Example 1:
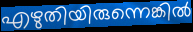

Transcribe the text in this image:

എഴുതിയിരുന്നെങ്കിൽ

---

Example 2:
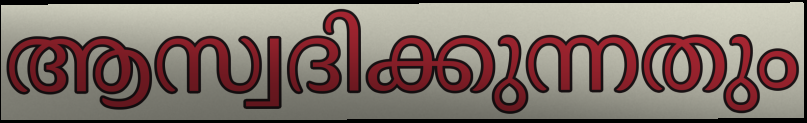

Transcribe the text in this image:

ആസ്വദിക്കുന്നതും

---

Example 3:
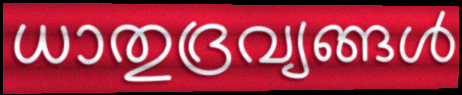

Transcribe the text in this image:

ധാതുദ്രവ്യങ്ങൾ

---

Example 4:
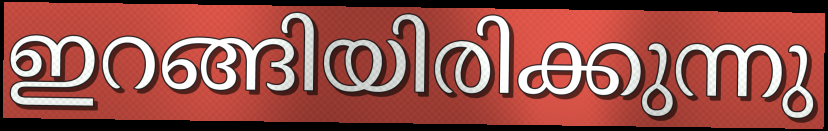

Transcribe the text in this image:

ഇറങ്ങിയിരിക്കുന്നു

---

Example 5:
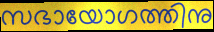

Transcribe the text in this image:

സഭായോഗത്തിനു